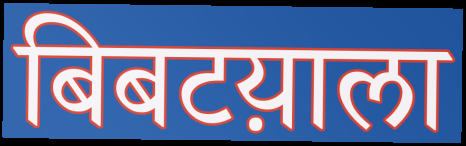
बिबटय़ाला